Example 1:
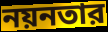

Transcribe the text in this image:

নয়নতার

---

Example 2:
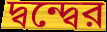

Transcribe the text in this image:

দ্বন্দ্বের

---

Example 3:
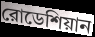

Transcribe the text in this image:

রোডেশিয়ান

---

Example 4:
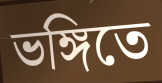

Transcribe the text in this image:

ভঙ্গিতে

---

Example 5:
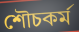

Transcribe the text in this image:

শৌচকর্ম